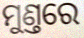
ମୁଣ୍ତରେ